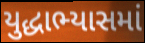
યુદ્ધાભ્યાસમાં